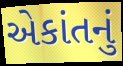
એકાંતનું